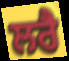
ਲਰੈ